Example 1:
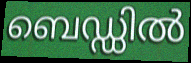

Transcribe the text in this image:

ബെഡ്ഡിൽ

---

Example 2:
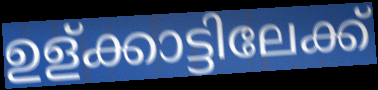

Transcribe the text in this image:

ഉള്ക്കാട്ടിലേക്ക്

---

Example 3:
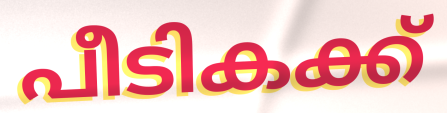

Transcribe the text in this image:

പീടികക്ക്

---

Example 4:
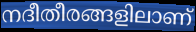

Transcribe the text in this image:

നദീതീരങ്ങളിലാണ്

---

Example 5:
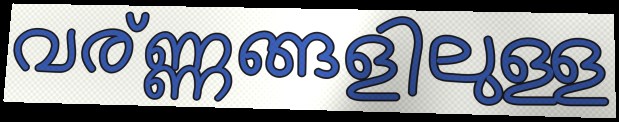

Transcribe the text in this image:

വര്ണ്ണങ്ങളിലുള്ള